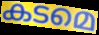
കടമെ